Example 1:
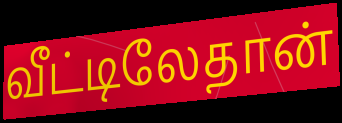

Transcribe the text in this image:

வீட்டிலேதான்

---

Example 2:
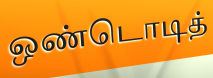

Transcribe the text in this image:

ஒண்டொடித்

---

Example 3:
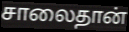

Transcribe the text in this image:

சாலைதான்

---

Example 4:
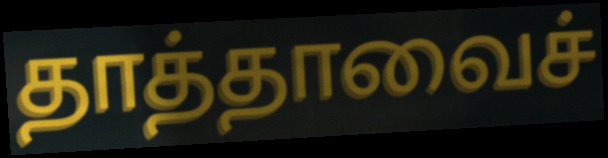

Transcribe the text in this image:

தாத்தாவைச்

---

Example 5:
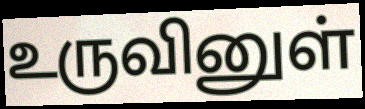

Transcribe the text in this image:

உருவினுள்